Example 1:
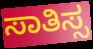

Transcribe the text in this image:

ಸಾತಿಸ್ಸ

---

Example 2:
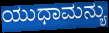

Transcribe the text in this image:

ಯುಧಾಮನ್ಯು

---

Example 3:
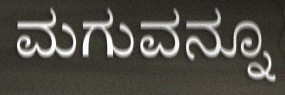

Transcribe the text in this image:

ಮಗುವನ್ನೂ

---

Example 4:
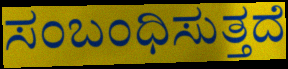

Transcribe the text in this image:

ಸಂಬಂಧಿಸುತ್ತದೆ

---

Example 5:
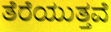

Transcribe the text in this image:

ತೆರೆಯುತ್ತವೆ